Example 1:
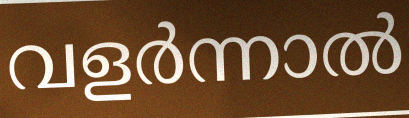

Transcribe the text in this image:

വളർന്നാൽ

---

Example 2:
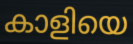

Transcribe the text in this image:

കാളിയെ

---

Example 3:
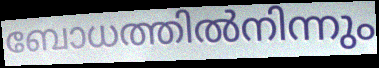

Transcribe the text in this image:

ബോധത്തിൽനിന്നും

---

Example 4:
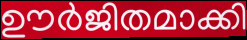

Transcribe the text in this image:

ഊർജിതമാക്കി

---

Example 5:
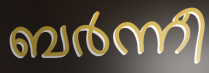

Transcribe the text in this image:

ബർന്നീ